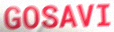
GOSAVI